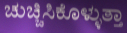
ಚುಚ್ಚಿಸಿಕೊಳ್ಳುತ್ತಾ